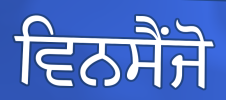
ਵਿਨਸੈਂਜੋ